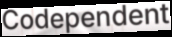
Codependent